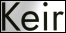
Keir